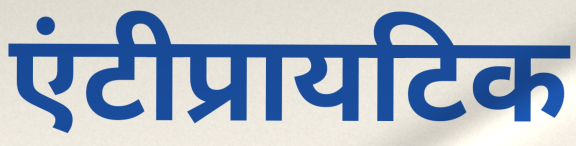
एंटीप्रायटिक